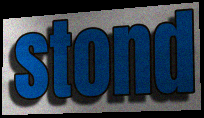
stond